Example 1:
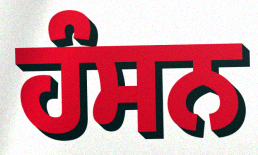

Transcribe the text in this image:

ਹੰਸਨ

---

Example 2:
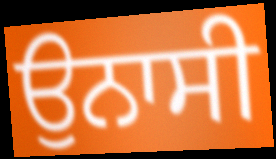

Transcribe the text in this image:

ਉਨਾਸੀ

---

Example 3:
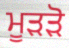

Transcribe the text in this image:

ਮੂੜੜੋ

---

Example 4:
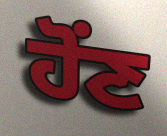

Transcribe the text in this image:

ਹੋਂਣ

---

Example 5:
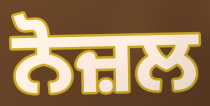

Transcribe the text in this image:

ਨੋਜ਼ਲ